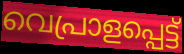
വെപ്രാളപ്പെട്ട്